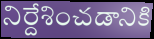
నిర్దేశించడానికి